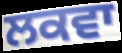
ਲਕਵਾ